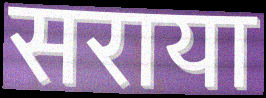
सराया